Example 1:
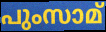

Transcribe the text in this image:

പുംസാമ്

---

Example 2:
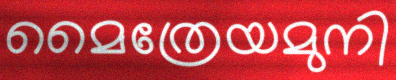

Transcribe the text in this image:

മൈത്രേയമുനി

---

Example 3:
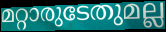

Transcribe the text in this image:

മറ്റാരുടേതുമല്ല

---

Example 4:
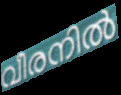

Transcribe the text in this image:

വീരനിൽ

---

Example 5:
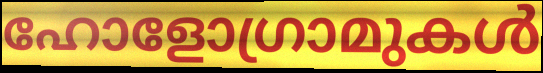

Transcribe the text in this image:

ഹോളോഗ്രാമുകൾ